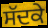
ਸੱਦਕੇ